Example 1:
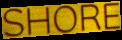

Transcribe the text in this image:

SHORE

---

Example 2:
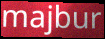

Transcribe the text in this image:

majbur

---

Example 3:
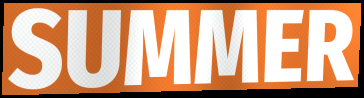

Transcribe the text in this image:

SUMMER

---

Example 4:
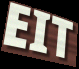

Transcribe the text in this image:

EIT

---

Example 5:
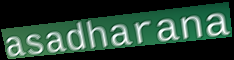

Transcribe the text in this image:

asadharana